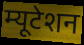
म्यूटेशन